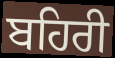
ਬਹਿਰੀ